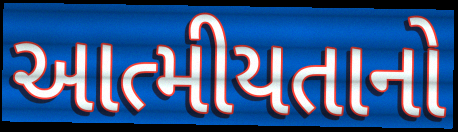
આત્મીયતાનો